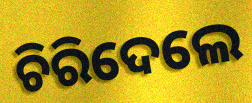
ଚିରିଦେଲେ